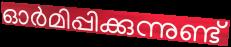
ഓർമിപ്പിക്കുന്നുണ്ട്